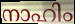
നാഹിം